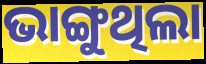
ଭାଙ୍ଗୁଥିଲା